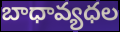
బాధావ్యధల